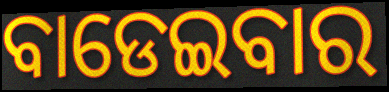
ବାଡେଇବାର